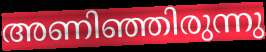
അണിഞ്ഞിരുന്നു